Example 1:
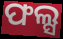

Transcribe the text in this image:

ଫଲ୍ସ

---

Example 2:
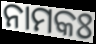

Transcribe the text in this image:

ନାମକଃ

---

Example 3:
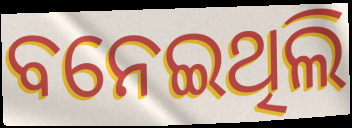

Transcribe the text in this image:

ବନେଇଥିଲି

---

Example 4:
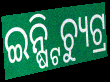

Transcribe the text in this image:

ଇନ୍ଷ୍ଟିଚ୍ୟୁଟ୍ର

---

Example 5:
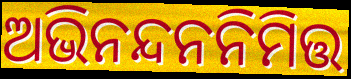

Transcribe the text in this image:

ଅଭିନନ୍ଦନନିମିତ୍ତ